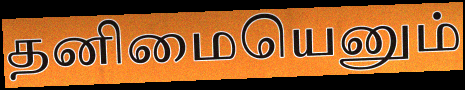
தனிமையெனும்